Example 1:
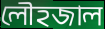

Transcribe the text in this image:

লৌহজাল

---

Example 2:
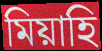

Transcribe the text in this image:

মিয়াহি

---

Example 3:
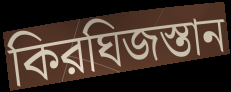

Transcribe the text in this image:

কিরঘিজস্তান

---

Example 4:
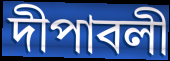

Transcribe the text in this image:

দীপাবলী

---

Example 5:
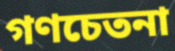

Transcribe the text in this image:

গণচেতনা